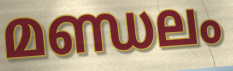
മണ്ഡലം